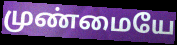
முண்மையே